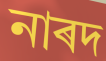
নাৰদ